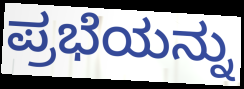
ಪ್ರಭೆಯನ್ನು